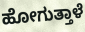
ಹೋಗುತ್ತಾಳೆ